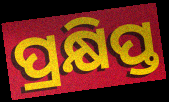
ପ୍ରକ୍ଷିପ୍ତ